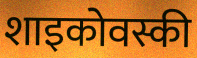
शाइकोवस्की